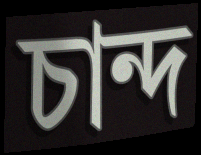
চান্দ